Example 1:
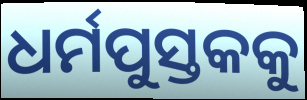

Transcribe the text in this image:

ଧର୍ମପୁସ୍ତକକୁ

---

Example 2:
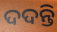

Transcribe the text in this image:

ଦଦନ୍ତି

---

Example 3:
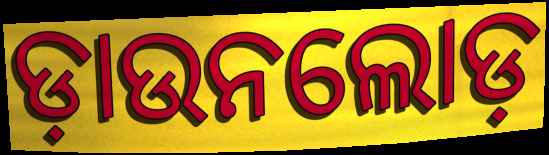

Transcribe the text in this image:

ଡ଼ାଉନଲୋଡ଼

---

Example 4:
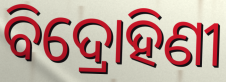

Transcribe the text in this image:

ବିଦ୍ରୋହିଣୀ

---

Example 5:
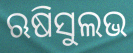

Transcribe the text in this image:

ଋଷିସୁଲଭ